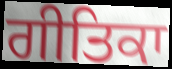
ਗੀਤਿਕਾ